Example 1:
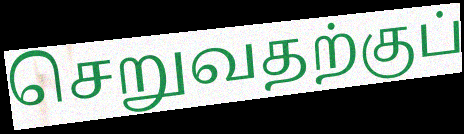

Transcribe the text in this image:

செறுவதற்குப்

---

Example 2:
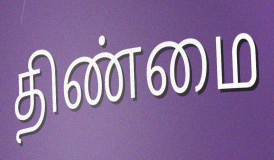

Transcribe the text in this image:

திண்மை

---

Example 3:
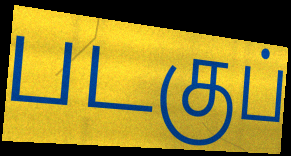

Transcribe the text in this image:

படகுப்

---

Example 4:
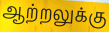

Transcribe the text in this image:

ஆற்றலுக்கு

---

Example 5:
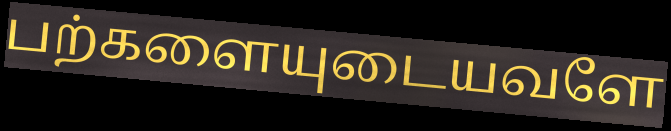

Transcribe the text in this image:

பற்களையுடையவளே